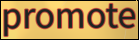
promote